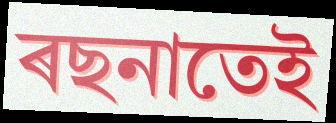
ৰছনাতেই